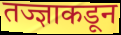
तज्ज्ञाकडून